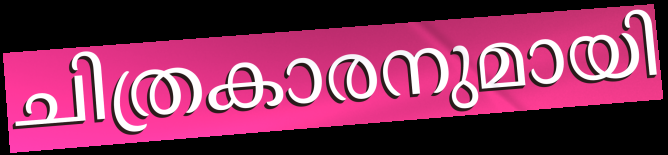
ചിത്രകാരനുമായി